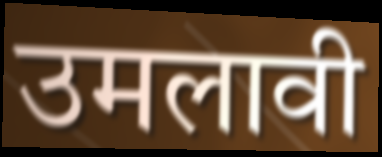
उमलावी